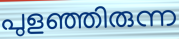
പുളഞ്ഞിരുന്ന